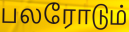
பலரோடும்